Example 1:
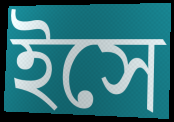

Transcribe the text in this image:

ইসে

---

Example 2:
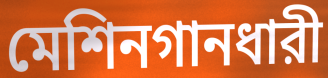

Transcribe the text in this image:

মেশিনগানধারী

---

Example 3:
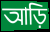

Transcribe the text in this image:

আড়ি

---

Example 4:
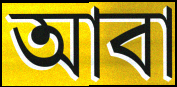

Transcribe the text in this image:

আবা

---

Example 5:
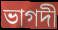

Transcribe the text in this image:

ভাগদী